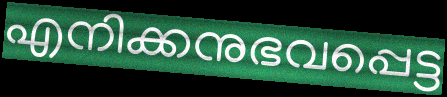
എനിക്കനുഭവപ്പെട്ട